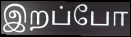
இறப்போ